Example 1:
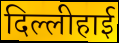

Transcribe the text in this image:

दिल्लीहाई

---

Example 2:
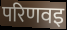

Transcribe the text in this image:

परिणवइ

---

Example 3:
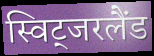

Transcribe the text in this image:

स्विट्जरलैंड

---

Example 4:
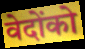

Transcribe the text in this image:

वेदोंको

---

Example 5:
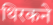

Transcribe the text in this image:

थिरकने